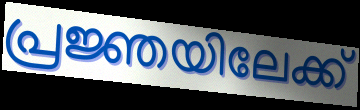
പ്രജ്ഞയിലേക്ക്